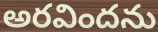
అరవిందను